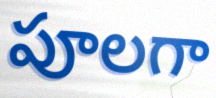
పూలగా